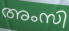
അംസി